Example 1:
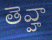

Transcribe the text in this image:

తెవ్హా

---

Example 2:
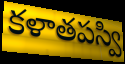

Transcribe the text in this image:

కళాతపస్వి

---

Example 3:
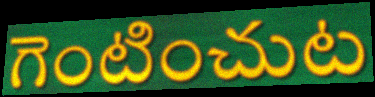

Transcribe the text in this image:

గెంటించుట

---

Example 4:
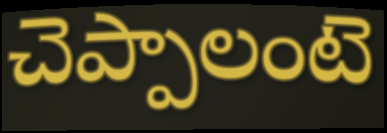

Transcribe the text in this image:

చెప్పాలంటె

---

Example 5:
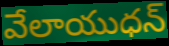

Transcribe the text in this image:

వేలాయుధన్